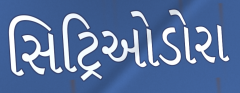
સિટ્રિઓડોરા